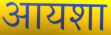
आयशा